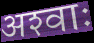
अश्वाः